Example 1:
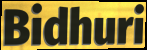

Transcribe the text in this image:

Bidhuri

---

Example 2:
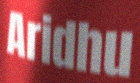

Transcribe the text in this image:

Aridhu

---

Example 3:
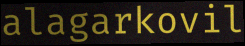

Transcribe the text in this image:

alagarkovil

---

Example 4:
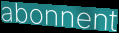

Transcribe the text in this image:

abonnent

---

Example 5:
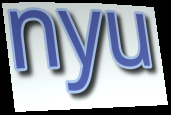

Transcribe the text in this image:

nyu